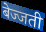
बेज्जती